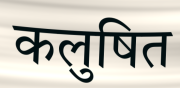
कलुषित